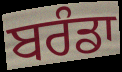
ਬਰੰਡਾ